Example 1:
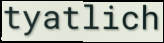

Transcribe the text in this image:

tyatlich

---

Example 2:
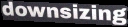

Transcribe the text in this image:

downsizing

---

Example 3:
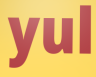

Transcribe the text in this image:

yul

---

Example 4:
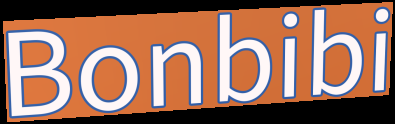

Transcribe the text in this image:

Bonbibi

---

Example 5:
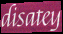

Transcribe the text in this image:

disatey